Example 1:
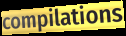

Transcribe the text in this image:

compilations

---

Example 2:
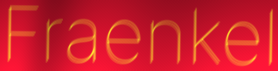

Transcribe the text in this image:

Fraenkel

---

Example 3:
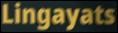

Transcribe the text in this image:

Lingayats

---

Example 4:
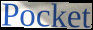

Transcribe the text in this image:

Pocket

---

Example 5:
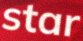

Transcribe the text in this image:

star